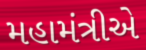
મહામંત્રીએ